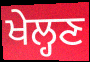
ਖੇਲ੍ਹਣ